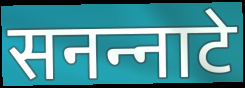
सनन्नाटे